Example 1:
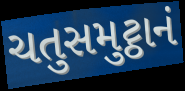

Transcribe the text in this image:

ચતુસમુટ્ઠાનં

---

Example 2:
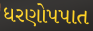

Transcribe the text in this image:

ધરણોપપાત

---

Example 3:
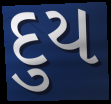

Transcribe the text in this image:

દુય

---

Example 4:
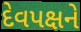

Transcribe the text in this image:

દેવપક્ષને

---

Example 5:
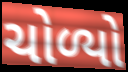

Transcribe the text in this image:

ચોળ્યો